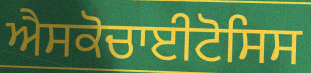
ਐਸਕੋਚਾਈਟੋਸਿਸ